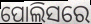
ପୋଲିସରେ